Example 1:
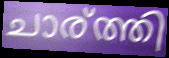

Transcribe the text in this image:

ചാര്ത്തി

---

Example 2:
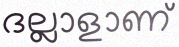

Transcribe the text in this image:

ദല്ലാളാണ്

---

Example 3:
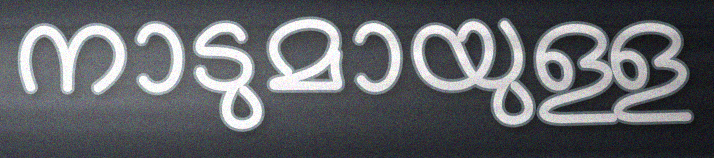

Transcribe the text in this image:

നാടുമായുള്ള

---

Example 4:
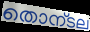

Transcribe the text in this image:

തൊന്ടല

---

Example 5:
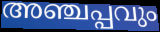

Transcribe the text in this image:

അഞ്ചപ്പവും